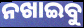
ନଖାଇବୁ